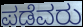
ಪಡೆವರು